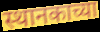
स्थानकाच्या